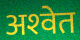
अश्‍वेत